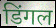
डिंगल